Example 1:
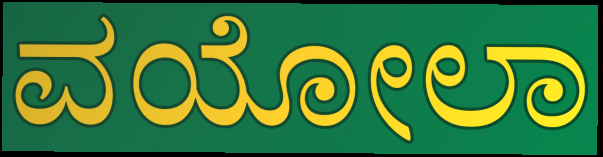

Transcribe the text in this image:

ವಯೋಲಾ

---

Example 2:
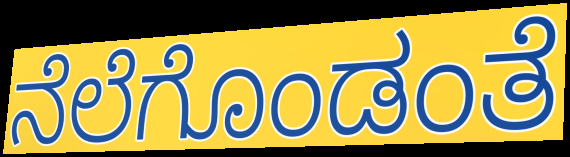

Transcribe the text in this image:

ನೆಲೆಗೊಂಡಂತೆ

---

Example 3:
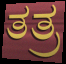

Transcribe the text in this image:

ತತ್ರ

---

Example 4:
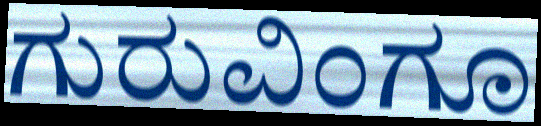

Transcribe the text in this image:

ಗುರುವಿಂಗೂ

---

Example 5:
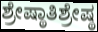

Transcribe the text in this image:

ಶ್ರೇಷ್ಠಾತಿಶ್ರೇಷ್ಠ